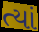
ત્‍યાં